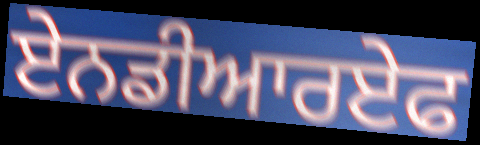
ਏਨਡੀਆਰਏਫ